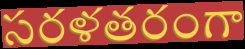
సరళతరంగా